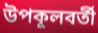
উপকূলবর্তী